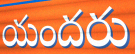
యందరు